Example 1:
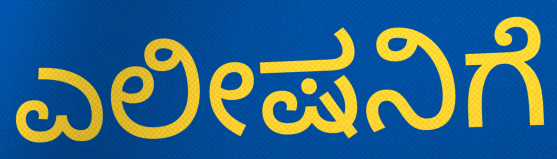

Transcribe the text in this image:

ಎಲೀಷನಿಗೆ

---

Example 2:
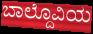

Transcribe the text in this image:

ಬಾಲ್ದೊವಿಯ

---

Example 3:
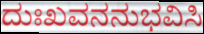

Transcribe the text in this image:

ದುಃಖವನನುಭವಿಸಿ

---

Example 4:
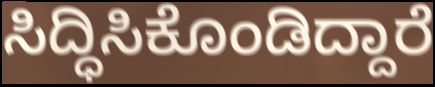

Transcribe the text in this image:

ಸಿದ್ಧಿಸಿಕೊಂಡಿದ್ದಾರೆ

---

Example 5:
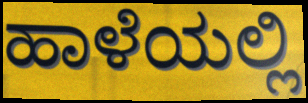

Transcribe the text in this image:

ಹಾಳೆಯಲ್ಲಿ